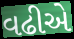
વઢીએ